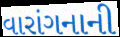
વારાંગનાની